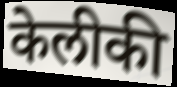
केलीकी